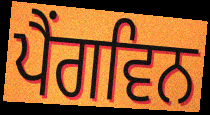
ਪੈਂਗਵਿਨ